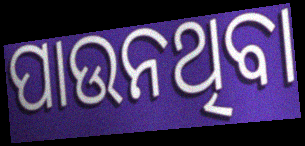
ପାଉନଥିବା